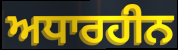
ਅਧਾਰਹੀਨ